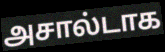
அசால்டாக